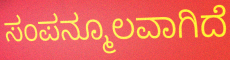
ಸಂಪನ್ಮೂಲವಾಗಿದೆ